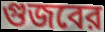
গুজবের